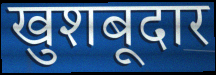
खुशबूदार